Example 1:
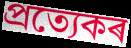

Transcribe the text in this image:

প্ৰত্যেকৰ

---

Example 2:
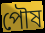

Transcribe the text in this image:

পৌষ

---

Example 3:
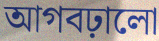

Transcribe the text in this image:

আগবঢ়ালো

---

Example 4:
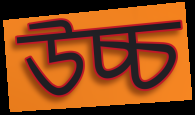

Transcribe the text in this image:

উচ্চ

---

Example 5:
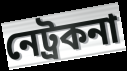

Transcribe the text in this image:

নেট্ৰকনা